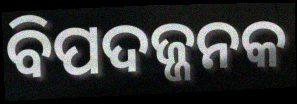
ବିପଦଜ୍ଜନକ